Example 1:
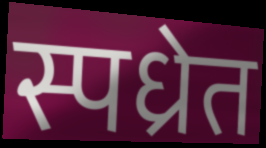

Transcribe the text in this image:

स्पध्रेत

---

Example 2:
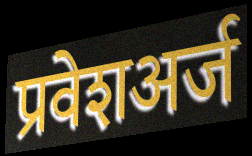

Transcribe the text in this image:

प्रवेशअर्ज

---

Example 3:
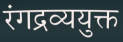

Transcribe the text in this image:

रंगद्रव्ययुक्त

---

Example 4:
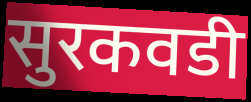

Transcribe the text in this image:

सुरकवडी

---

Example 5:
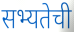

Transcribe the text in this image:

सभ्यतेची